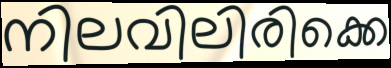
നിലവിലിരിക്കെ